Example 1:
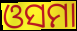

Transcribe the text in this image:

ଓସମା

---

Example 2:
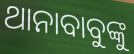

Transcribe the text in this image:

ଥାନାବାବୁଙ୍କୁ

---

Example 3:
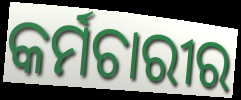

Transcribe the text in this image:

କର୍ମଚାରୀର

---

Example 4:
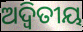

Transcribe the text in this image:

ଅଦ୍ଵିତୀୟ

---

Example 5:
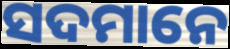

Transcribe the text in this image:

ସଦମାନେ